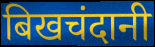
बिखचंदानी